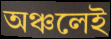
অঞ্চলেই